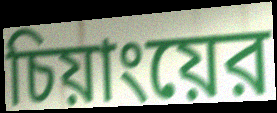
চিয়াংয়ের